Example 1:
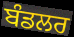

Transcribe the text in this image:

ਬੰਡਲਰ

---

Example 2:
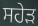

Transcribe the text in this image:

ਸਹੇੜ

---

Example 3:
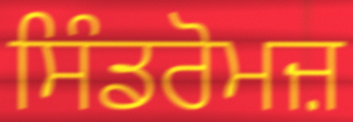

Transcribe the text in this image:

ਸਿੰਡਰੋਮਜ਼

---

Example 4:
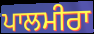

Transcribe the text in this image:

ਪਾਲਮੀਰਾ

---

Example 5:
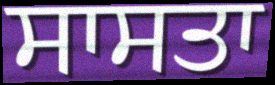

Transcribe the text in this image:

ਸਾਸਤਾ